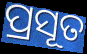
ପ୍ରସୂତ